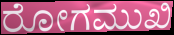
ರೋಗಮುಖಿ